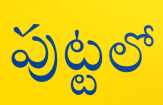
పుట్టలో